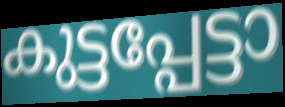
കുട്ടപ്പേട്ടാ